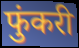
फुंकरी